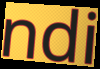
ndi